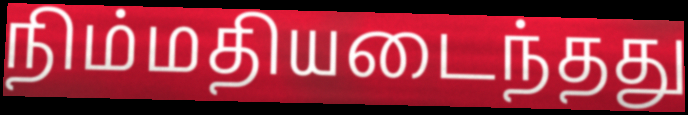
நிம்மதியடைந்தது